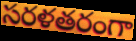
సరళతరంగా